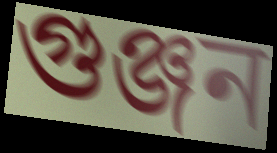
গুঞ্জন